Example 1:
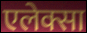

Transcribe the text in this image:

एलेक्सा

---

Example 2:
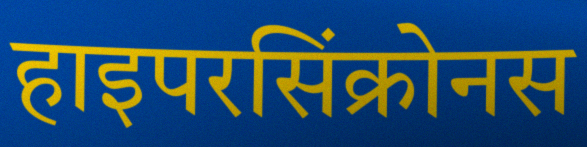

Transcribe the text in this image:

हाइपरसिंक्रोनस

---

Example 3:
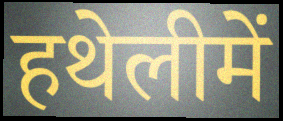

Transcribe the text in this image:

हथेलीमें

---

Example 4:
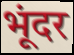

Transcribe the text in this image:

भूंदर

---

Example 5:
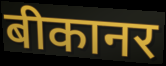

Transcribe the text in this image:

बीकानर